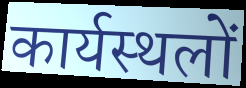
कार्यस्थलों